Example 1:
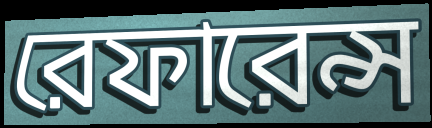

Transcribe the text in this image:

রেফারেন্স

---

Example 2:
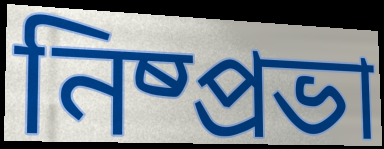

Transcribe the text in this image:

নিষ্প্রভা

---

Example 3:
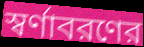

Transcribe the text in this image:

স্বর্ণাবরণের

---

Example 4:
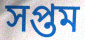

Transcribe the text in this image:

সপ্তম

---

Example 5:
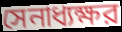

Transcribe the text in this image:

সেনাধ্যক্ষর